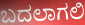
ಬದಲಾಗಲಿ